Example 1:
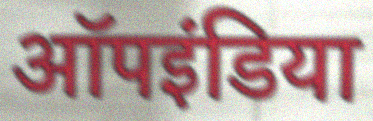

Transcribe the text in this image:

ऑपइंडिया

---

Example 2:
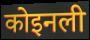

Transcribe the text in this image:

कोइनली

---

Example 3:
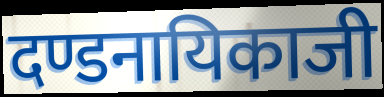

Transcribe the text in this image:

दण्डनायिकाजी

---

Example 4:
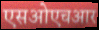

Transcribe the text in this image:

एसओएचआर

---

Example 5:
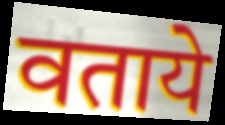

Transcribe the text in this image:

वताये